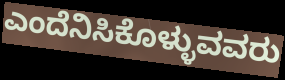
ಎಂದೆನಿಸಿಕೊಳ್ಳುವವರು